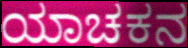
ಯಾಚಕನ